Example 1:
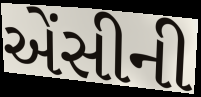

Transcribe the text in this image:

એંસીની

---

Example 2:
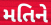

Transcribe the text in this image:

મતિને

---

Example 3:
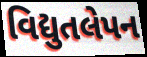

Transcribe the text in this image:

વિદ્યુતલેપન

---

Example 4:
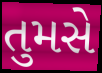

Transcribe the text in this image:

તુમસે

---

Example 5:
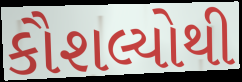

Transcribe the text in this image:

કૌશલ્યોથી